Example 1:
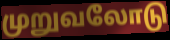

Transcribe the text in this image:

முறுவலோடு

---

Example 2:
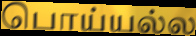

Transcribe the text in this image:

பொய்யல்ல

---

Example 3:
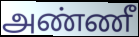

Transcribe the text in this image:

அண்ணீ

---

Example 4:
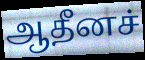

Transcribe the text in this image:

ஆதீனச்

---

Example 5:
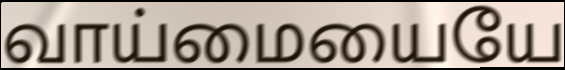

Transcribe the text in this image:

வாய்மையையே